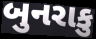
બુનરાકુ